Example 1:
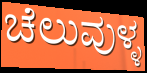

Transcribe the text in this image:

ಚೆಲುವುಳ್ಳ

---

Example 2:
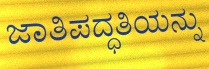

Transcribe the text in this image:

ಜಾತಿಪದ್ಧತಿಯನ್ನು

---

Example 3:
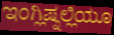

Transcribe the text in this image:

ಇಂಗ್ಲಿಷ್ನಲ್ಲಿಯೂ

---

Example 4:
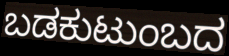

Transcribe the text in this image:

ಬಡಕುಟುಂಬದ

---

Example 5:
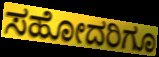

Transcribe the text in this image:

ಸಹೋದರಿಗೂ